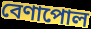
বেণাপোল